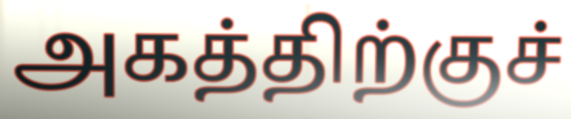
அகத்திற்குச்